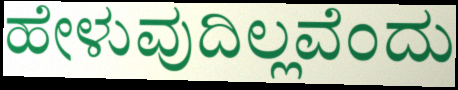
ಹೇಳುವುದಿಲ್ಲವೆಂದು